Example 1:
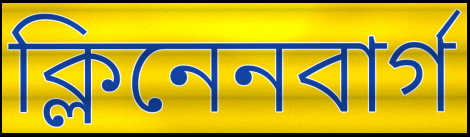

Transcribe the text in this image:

ক্লিনেনবার্গ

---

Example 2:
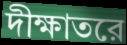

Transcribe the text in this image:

দীক্ষাতরে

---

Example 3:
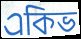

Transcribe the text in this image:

একিভ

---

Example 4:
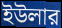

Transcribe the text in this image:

ইউলার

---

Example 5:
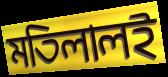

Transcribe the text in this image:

মতিলালই